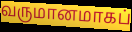
வருமானமாகப்